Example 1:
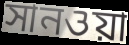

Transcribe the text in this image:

সানওয়া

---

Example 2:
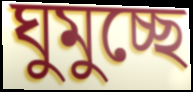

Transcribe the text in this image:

ঘুমুচ্ছে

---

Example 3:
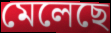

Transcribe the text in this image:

মেলেছে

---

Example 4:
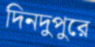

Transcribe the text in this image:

দিনদুপুরে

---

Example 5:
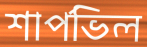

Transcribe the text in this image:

শার্পভিল